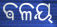
ଵଳୟ